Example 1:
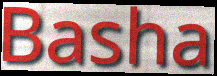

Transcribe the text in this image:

Basha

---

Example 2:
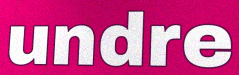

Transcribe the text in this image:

undre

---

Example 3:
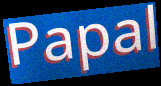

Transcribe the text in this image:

Papal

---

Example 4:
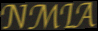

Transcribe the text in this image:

NMIA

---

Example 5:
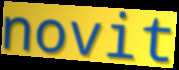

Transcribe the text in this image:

novit